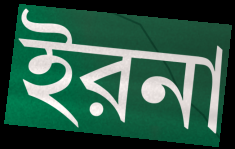
ইরনা